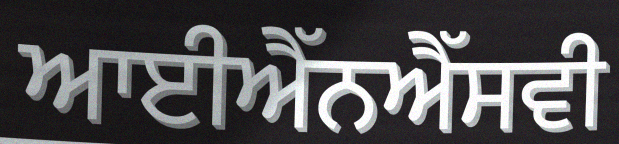
ਆਈਐੱਨਐੱਸਵੀ